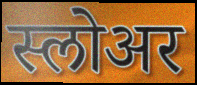
स्लोअर